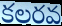
కలరవ